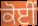
ਕੋਈਂ